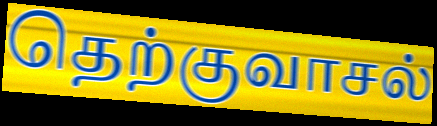
தெற்குவாசல்